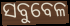
ସବୁବେଳ